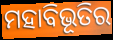
ମହାବିଭୂତିର